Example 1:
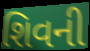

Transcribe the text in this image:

શિવની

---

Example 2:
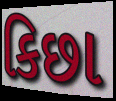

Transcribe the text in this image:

કિછા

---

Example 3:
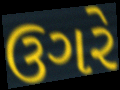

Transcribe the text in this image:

ઉગરે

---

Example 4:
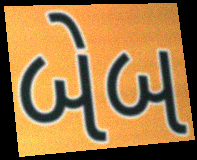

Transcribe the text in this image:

બેબ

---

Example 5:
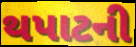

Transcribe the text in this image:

થપાટની